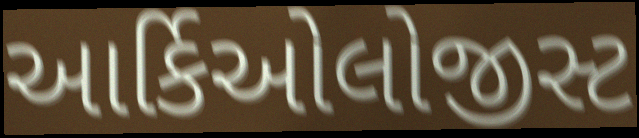
આર્કિઓલોજીસ્ટ